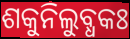
ଶକୁନିଲୁବ୍ଧକଃ